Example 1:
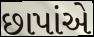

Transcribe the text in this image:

છાપાંએ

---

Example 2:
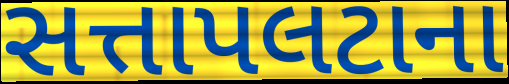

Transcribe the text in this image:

સત્તાપલટાના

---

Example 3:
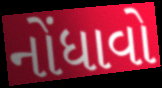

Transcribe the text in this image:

નોંધાવો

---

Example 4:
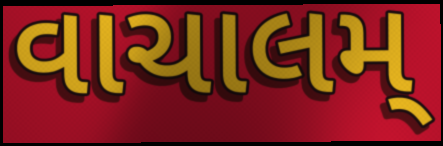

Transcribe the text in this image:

વાચાલમ્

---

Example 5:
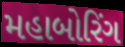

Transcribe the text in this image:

મહાબોરિંગ